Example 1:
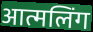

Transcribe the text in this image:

आत्मलिंग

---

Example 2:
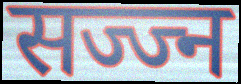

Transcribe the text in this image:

सज्ज्न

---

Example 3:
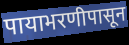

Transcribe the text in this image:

पायाभरणीपासून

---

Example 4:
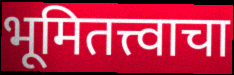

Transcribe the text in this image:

भूमितत्त्वाचा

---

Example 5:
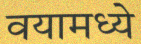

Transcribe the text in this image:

वयामध्ये